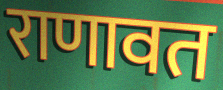
राणावत